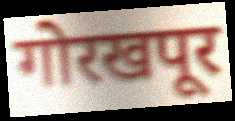
गोरखपूर